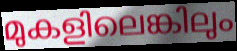
മുകളിലെങ്കിലും